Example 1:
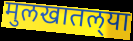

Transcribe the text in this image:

मुलखातल्या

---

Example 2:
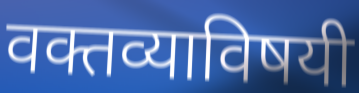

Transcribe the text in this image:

वक्तव्याविषयी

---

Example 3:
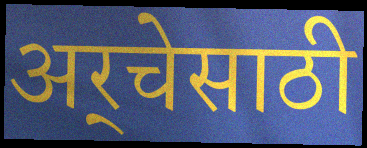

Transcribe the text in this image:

अर्चेसाठी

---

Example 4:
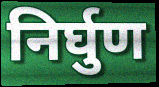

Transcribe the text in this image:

निर्घुण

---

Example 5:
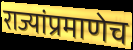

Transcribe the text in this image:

राज्यांप्रमाणेच